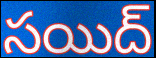
సయిద్